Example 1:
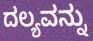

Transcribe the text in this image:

ದಲ್ಯವನ್ನು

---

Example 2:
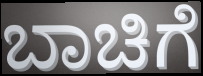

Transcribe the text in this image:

ಬಾಚಿಗೆ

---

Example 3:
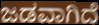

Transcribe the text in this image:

ಜಡವಾಗಿದೆ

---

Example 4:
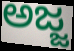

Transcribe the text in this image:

ಅಜ್ಜ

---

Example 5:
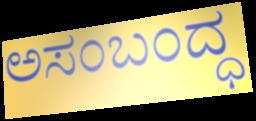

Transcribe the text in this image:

ಅಸಂಬಂದ್ಧ